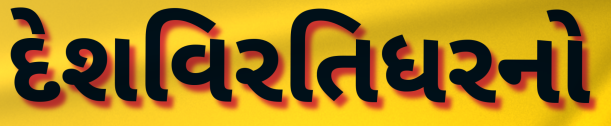
દેશવિરતિધરનો